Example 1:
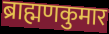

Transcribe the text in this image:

ब्राह्मणकुमार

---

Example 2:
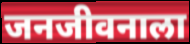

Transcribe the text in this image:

जनजीवनाला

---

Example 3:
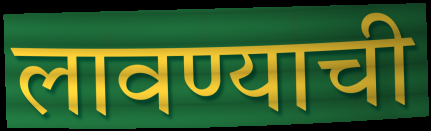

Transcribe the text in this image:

लावण्याची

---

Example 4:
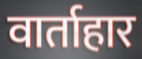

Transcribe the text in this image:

वार्ताहार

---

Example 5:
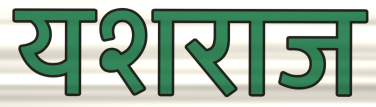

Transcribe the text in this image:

यशराज